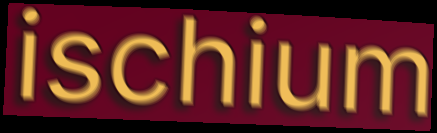
ischium